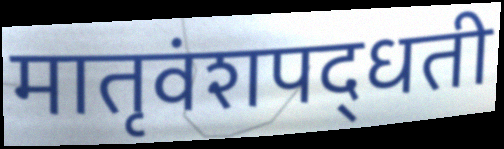
मातृवंशपद्धती